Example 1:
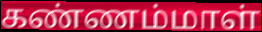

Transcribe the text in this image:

கண்ணம்மாள்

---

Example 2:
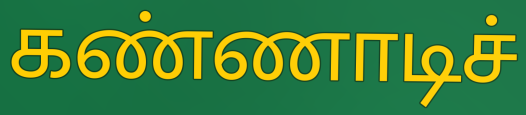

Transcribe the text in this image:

கண்ணாடிச்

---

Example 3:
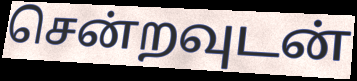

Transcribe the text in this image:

சென்றவுடன்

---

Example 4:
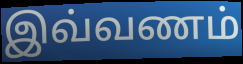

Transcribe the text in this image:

இவ்வணம்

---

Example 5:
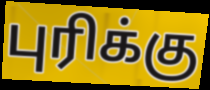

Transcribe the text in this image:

புரிக்கு